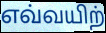
எவ்வயிற்